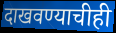
दाखवण्याचीही